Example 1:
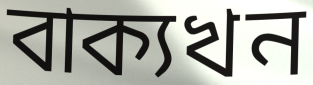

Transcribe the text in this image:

বাক্যখন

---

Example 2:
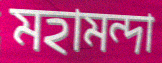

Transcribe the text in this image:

মহামন্দা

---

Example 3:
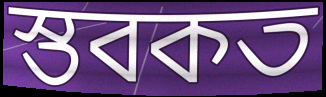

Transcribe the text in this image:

স্তবকত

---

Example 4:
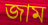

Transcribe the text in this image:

জাম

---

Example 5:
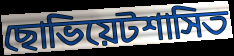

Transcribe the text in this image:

ছোভিয়েটশাসিত